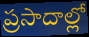
ప్రసాదాల్లో